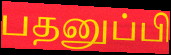
பதனுப்பி